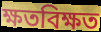
ক্ষতবিক্ষত